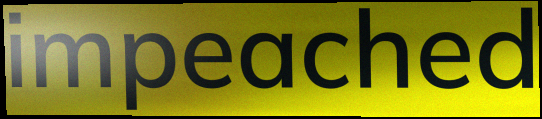
impeached